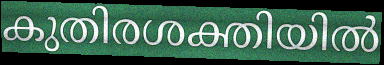
കുതിരശക്തിയിൽ